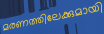
മരണത്തിലേക്കുമായി